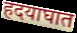
हदयाघात